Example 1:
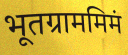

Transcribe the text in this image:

भूतग्राममिमं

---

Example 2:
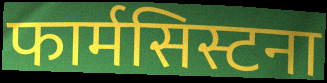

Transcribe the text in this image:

फार्मसिस्टना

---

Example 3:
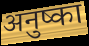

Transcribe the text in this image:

अनुष्का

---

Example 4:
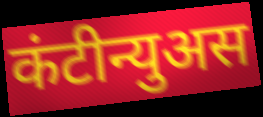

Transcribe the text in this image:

कंटीन्युअस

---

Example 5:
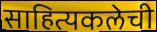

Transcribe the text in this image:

साहित्यकलेची